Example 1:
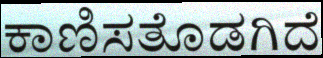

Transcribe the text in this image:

ಕಾಣಿಸತೊಡಗಿದೆ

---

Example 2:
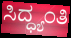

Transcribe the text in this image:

ಸಿದ್ಧ್ಯಂತಿ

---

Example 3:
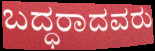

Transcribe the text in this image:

ಬದ್ಧರಾದವರು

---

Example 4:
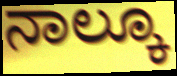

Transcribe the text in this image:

ನಾಲ್ಕೂ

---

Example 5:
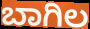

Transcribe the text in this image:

ಬಾಗಿಲ